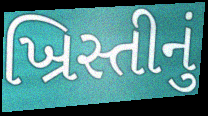
ખ્રિસ્તીનું